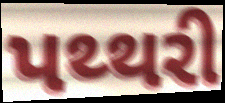
પથ્થરી